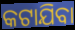
କଟାଯିବା